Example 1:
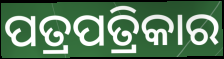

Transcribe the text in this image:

ପତ୍ରପତ୍ରିକାର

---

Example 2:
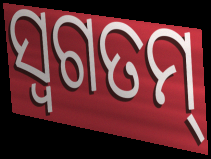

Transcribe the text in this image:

ସ୍ୱଗତମ୍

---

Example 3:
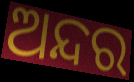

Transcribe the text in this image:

ଅନ୍ଦର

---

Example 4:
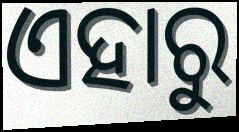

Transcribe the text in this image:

ଏହାରୁ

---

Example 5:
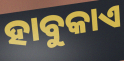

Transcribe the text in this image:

ହାବୁକାଏ